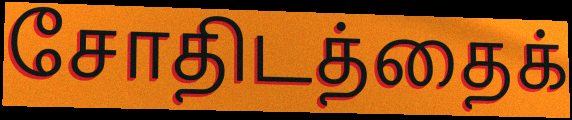
சோதிடத்தைக்